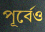
পূর্বেও